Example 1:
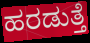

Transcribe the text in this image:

ಹರಡುತ್ತೆ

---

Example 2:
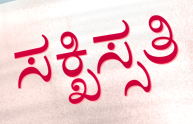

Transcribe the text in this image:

ಸಕ್ಖಿಸ್ಸತಿ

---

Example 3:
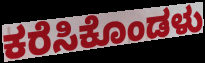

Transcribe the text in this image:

ಕರೆಸಿಕೊಂಡಳು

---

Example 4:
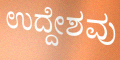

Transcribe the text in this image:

ಉದ್ದೇಶವು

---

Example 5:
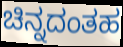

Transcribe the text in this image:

ಚಿನ್ನದಂತಹ